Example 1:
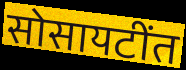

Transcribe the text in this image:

सोसायटींत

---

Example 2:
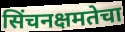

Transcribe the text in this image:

सिंचनक्षमतेचा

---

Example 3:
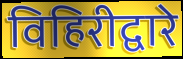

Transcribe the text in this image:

विहिरीद्वारे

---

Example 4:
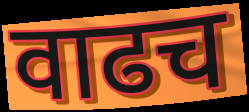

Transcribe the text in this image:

वाढच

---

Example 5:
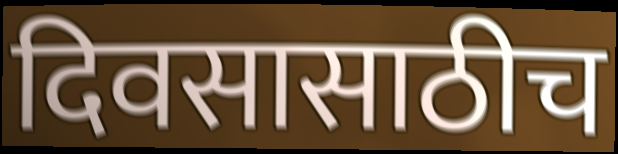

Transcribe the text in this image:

दिवसासाठीच